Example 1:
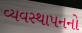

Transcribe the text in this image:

વ્યવસ્થાપનનો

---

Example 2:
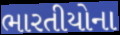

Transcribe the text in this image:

ભારતીયોના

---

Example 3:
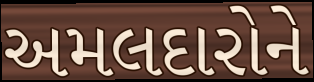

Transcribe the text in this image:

અમલદારોને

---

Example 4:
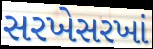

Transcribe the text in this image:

સરખેસરખાં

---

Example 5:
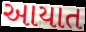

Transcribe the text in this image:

આયાત